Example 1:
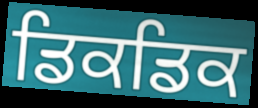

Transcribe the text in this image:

ਡਿਕਡਿਕ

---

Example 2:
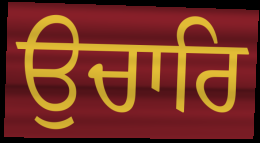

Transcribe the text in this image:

ਉਚਾਰਿ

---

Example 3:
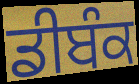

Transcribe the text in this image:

ਡੀਬੰਕ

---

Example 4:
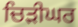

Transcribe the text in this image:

ਚਿੜੀਘਰ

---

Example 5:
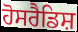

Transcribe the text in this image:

ਹੋਸਰੈਡਿਸ਼